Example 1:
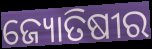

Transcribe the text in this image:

ଜ୍ୟୋତିଷୀର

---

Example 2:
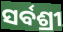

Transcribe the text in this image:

ସର୍ବଶ୍ରୀ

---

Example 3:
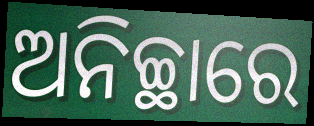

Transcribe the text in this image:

ଅନିଚ୍ଛାରେ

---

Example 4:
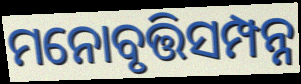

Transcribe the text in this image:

ମନୋବୃତ୍ତିସମ୍ପନ୍ନ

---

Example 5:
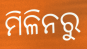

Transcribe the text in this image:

ମିଳିନରୁ